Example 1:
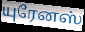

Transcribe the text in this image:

யுரேனஸ்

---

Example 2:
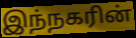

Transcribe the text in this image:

இந்நகரின்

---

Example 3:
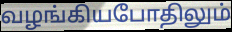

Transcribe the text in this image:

வழங்கியபோதிலும்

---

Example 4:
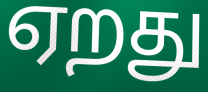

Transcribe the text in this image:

ஏறது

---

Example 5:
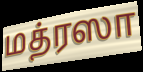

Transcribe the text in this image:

மத்ரஸா